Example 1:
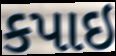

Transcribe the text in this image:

કપાઇ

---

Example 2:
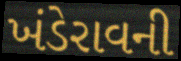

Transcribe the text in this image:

ખંડેરાવની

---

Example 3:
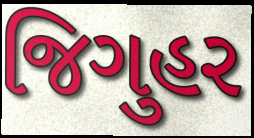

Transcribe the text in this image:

જિગુહર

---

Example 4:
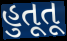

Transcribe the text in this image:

હુતૂતૂ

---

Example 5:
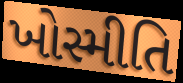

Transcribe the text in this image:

ખોસ્મીતિ